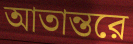
আতান্তরে